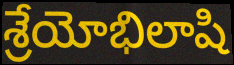
శ్రేయోభిలాషి